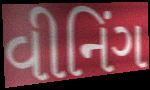
વીનિંગ